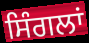
ਸਿੰਗਲਾਂ